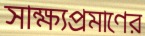
সাক্ষ্যপ্রমাণের